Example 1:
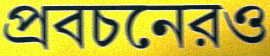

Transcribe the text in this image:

প্রবচনেরও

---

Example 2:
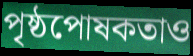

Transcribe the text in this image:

পৃষ্ঠপোষকতাও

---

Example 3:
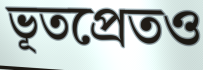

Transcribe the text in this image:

ভূতপ্রেতও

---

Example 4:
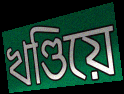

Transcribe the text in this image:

খণ্ডিয়ে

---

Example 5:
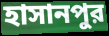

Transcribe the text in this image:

হাসানপুর